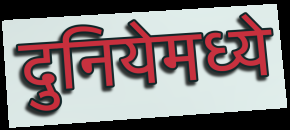
दुनियेमध्ये